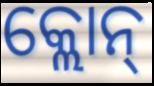
କ୍ଲୋନ୍